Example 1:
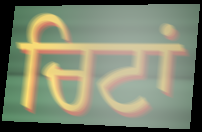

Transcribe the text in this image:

ਚਿਟਾਂ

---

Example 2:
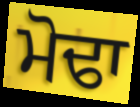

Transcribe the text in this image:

ਮੋਢਾ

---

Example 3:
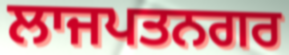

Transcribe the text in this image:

ਲਾਜਪਤਨਗਰ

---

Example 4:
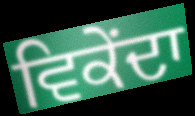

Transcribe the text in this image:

ਵਿਕੇਂਦਾ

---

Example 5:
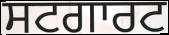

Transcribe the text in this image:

ਸਟਗਾਰਟ